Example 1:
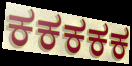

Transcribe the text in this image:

ಕಕಕಕಕ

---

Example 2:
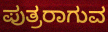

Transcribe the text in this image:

ಪುತ್ರರಾಗುವ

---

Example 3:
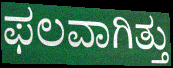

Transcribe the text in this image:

ಫಲವಾಗಿತ್ತು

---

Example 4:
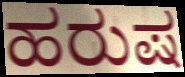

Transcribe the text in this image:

ಹರುಷ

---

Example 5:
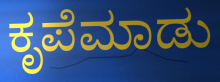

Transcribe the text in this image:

ಕೃಪೆಮಾಡು